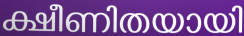
ക്ഷീണിതയായി